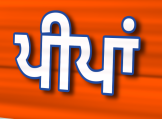
ਪੀਪਾਂ